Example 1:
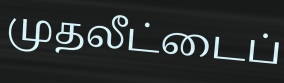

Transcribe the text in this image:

முதலீட்டைப்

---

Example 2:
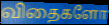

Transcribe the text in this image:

விதைகளோ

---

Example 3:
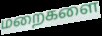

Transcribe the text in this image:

மறைகளை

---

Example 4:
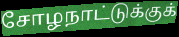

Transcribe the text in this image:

சோழநாட்டுக்குக்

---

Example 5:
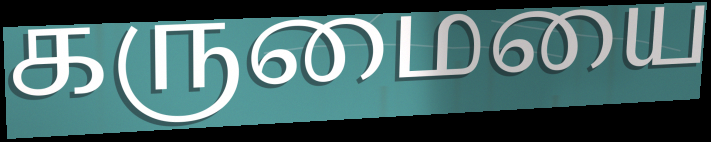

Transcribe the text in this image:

கருமையை